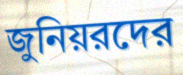
জুনিয়রদের